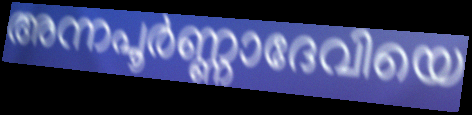
അന്നപൂർണ്ണാദേവിയെ